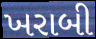
ખરાબી